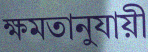
ক্ষমতানুযায়ী